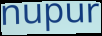
nupur